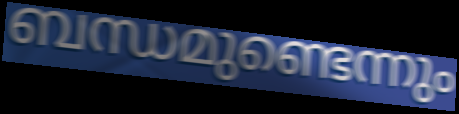
ബന്ധമുണ്ടെന്നും